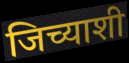
जिच्याशी